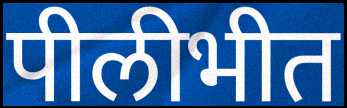
पीलीभीत